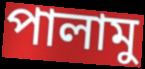
পালামু